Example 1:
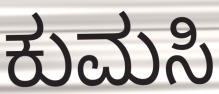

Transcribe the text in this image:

ಕುಮಸಿ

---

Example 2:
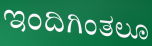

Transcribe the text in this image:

ಇಂದಿಗಿಂತಲೂ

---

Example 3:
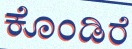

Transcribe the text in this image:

ಕೊಂಡಿರೆ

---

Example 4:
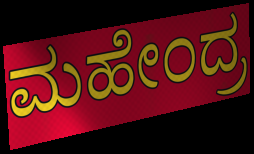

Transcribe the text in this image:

ಮಹೇಂದ್ರ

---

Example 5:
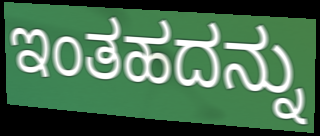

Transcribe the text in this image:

ಇಂತಹದನ್ನು